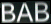
BAB